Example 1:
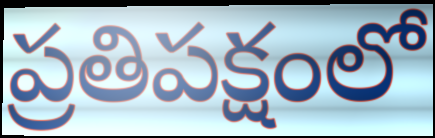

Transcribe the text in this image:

ప్రతిపక్షంలో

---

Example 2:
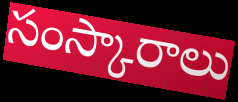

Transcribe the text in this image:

సంస్కారాలు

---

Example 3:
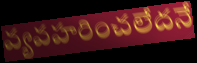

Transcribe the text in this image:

వ్యవహరించలేదనే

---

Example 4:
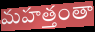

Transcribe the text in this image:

మహత్తంతా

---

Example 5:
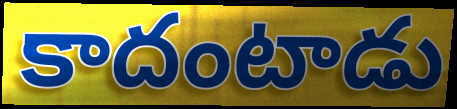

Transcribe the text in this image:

కాదంటాడు